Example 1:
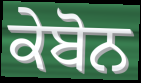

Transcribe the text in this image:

ਕੇਬੋਨ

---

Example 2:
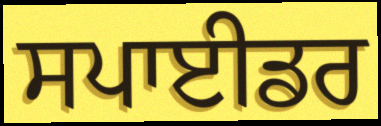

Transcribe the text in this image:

ਸਪਾਈਡਰ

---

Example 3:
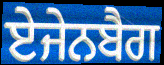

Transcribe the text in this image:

ਏਜੇਨਬੈਗ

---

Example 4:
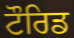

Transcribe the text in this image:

ਟੌਰਿਡ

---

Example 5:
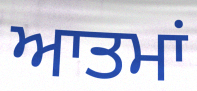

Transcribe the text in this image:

ਆਤਮਾਂ